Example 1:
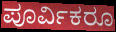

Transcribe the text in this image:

ಪೂರ್ವಿಕರೂ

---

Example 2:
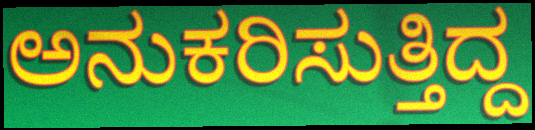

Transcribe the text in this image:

ಅನುಕರಿಸುತ್ತಿದ್ದ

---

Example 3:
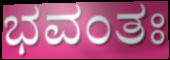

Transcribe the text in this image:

ಭವಂತಃ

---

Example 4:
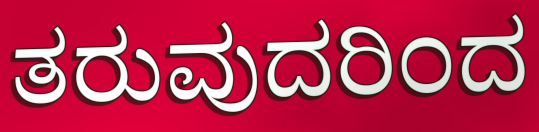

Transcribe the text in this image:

ತರುವುದರಿಂದ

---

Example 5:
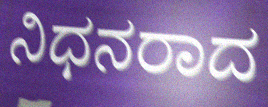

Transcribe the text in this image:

ನಿಧನರಾದ